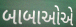
બાબાઓએ